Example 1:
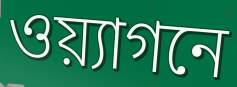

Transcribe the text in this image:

ওয়্যাগনে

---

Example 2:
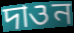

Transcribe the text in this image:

দাওন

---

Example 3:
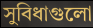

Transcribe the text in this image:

সুবিধাগুলো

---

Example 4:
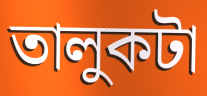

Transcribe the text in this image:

তালুকটা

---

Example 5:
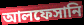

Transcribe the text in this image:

আলফেসানি